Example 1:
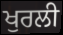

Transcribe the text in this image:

ਖੁਰਲੀ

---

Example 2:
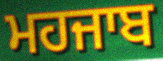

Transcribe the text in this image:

ਮਹਜਾਬ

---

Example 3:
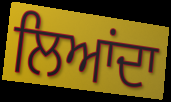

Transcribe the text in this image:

ਲਿਆਂਦਾ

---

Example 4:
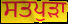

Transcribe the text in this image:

ਸਤਪੁੜਾ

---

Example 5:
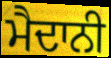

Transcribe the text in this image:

ਮੈਦਾਨੀ